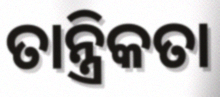
ତାନ୍ତ୍ରିକତା